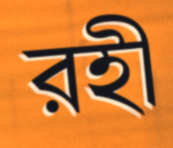
রহী